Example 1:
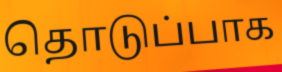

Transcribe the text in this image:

தொடுப்பாக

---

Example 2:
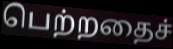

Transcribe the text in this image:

பெற்றதைச்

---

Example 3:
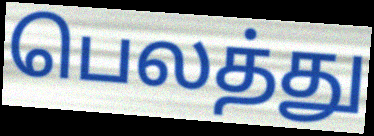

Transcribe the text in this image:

பெலத்து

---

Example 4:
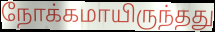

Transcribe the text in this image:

நோக்கமாயிருந்தது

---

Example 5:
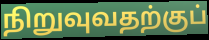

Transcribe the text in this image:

நிறுவுவதற்குப்